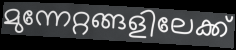
മുന്നേറ്റങ്ങളിലേക്ക്